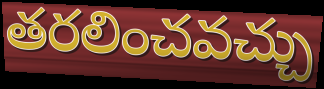
తరలించవచ్చు